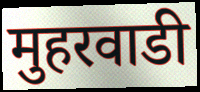
मुहरवाडी